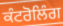
ਕੰਟਰੋਲਿੰਗ